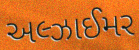
અલ્ઝાઈમર